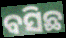
ବସିଛ